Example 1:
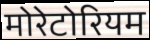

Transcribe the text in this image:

मोरेटोरियम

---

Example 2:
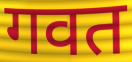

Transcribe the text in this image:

गवत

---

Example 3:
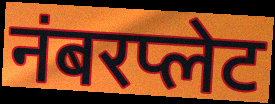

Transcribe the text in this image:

नंबरप्लेट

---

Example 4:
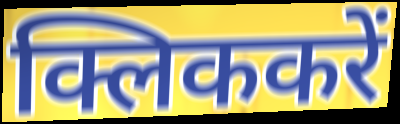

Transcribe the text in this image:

क्लिककरें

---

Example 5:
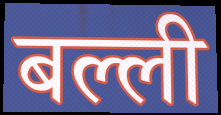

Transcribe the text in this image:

बल्ली